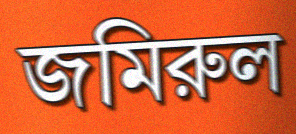
জমিরুল